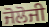
ਜੋਲੋਜੀ